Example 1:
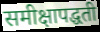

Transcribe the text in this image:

समीक्षापद्धती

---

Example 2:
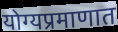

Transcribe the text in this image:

योग्यप्रमाणात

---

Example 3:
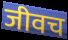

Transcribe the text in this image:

जीवच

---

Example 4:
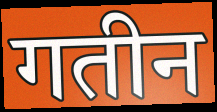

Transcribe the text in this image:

गतीन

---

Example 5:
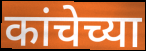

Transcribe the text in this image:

कांचेच्या